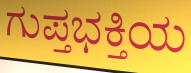
ಗುಪ್ತಭಕ್ತಿಯ